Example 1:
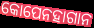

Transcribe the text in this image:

କୋପେନହାଗାନ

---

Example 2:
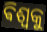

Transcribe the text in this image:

ଵିଶ୍ଵକୁ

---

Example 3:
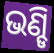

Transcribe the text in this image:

ଭଣ୍ଡି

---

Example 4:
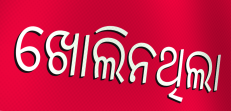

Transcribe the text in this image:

ଖୋଲିନଥିଲା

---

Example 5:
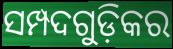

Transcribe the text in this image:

ସମ୍ପଦଗୁଡ଼ିକର